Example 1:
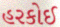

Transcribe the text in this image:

હરકોઈ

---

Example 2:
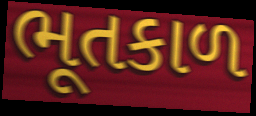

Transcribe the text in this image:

ભૂતકાળ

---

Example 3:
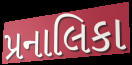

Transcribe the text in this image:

પ્રનાલિકા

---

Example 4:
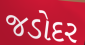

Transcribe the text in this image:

જડોદર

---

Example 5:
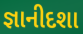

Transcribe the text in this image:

જ્ઞાનીદશા